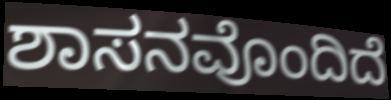
ಶಾಸನವೊಂದಿದೆ